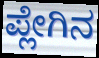
ಪ್ಲೇಗಿನ